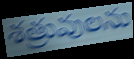
శత్రువులను